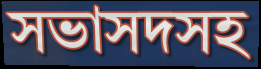
সভাসদসহ